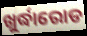
ଖୁର୍ଦ୍ଧାରୋଡ